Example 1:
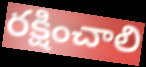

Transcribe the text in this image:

రక్షించాలి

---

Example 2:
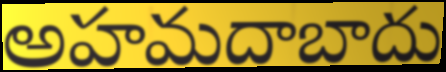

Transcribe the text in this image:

అహమదాబాదు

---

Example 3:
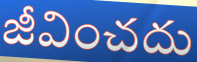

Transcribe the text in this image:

జీవించదు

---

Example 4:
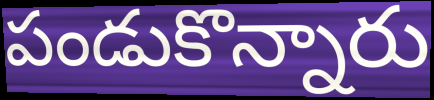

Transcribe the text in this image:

పండుకొన్నారు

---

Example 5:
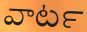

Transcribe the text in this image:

వాటర్‍